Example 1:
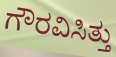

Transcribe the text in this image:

ಗೌರವಿಸಿತ್ತು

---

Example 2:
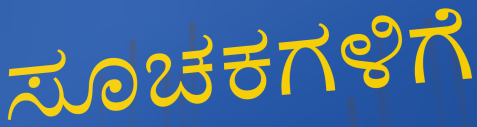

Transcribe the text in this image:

ಸೂಚಕಗಳಿಗೆ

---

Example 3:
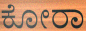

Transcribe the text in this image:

ಕೋರಾ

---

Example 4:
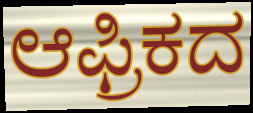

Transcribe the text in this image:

ಆಫ್ರಿಕದ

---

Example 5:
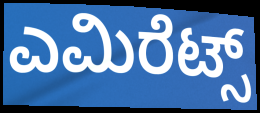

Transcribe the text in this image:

ಎಮಿರೆಟ್ಸ್